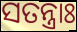
ସତନ୍ତ୍ରାଃ